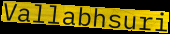
Vallabhsuri